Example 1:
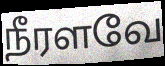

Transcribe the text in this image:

நீரளவே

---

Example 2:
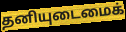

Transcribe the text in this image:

தனியுடைமைக்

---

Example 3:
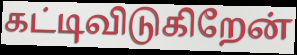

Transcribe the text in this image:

கட்டிவிடுகிறேன்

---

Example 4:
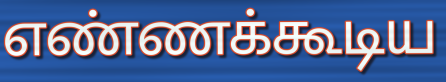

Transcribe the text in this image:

எண்ணக்கூடிய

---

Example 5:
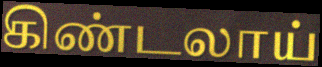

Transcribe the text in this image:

கிண்டலாய்